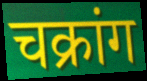
चक्रांग